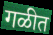
गळीत